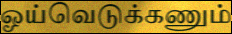
ஓய்வெடுக்கணும்